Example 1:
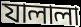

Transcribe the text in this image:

যালালা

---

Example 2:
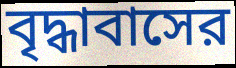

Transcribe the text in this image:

বৃদ্ধাবাসের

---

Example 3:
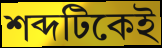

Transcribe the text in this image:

শব্দটিকেই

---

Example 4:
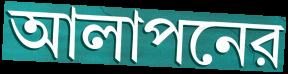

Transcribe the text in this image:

আলাপনের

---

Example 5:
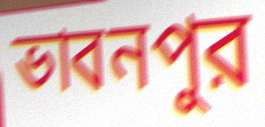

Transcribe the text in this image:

ভাবনপুর